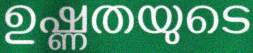
ഉഷ്ണതയുടെ